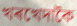
খৰখেদাকৈ